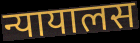
न्यायालस